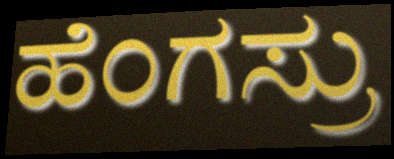
ಹೆಂಗಸ್ರು